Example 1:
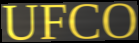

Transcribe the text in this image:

UFCO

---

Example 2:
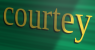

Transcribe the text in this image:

courtey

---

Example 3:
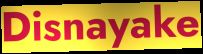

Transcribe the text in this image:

Disnayake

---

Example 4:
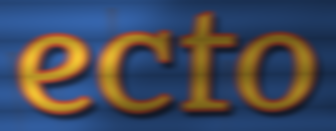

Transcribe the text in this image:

ecto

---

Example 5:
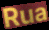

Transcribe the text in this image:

Rua